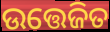
ଉତ୍ତେଜିତ